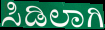
ಸಿಡಿಲಾಗಿ